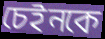
চেইনকে